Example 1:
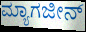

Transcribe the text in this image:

ಮ್ಯಾಗಜೀನ್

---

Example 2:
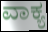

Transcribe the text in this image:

ವಾಕ್ಯ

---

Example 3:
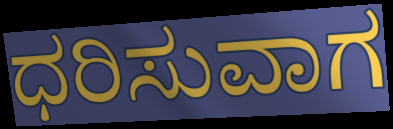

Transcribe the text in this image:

ಧರಿಸುವಾಗ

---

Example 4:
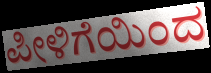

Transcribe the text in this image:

ಪೀಳಿಗೆಯಿಂದ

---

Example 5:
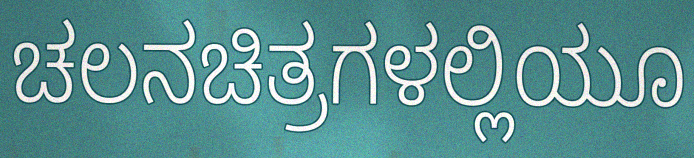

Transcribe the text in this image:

ಚಲನಚಿತ್ರಗಳಲ್ಲಿಯೂ